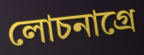
লোচনাগ্রে